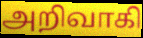
அறிவாகி